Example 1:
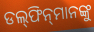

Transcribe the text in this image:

ଡଲ୍‍ଫିନ୍‍ମାନଙ୍କୁ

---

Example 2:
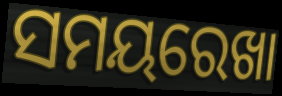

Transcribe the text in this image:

ସମୟରେଖା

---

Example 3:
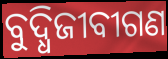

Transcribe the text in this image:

ବୁଦ୍ଧିଜୀବୀଗଣ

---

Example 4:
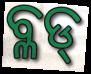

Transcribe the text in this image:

ବ୍ଳଡ୍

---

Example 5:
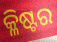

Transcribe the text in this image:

କ୍ଳିଷ୍ଟର